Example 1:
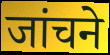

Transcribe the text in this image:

जांचने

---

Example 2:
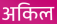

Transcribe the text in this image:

अकिल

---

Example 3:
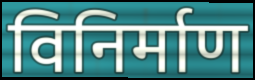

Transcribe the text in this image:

विनिर्माण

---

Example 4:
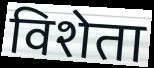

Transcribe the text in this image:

विशेता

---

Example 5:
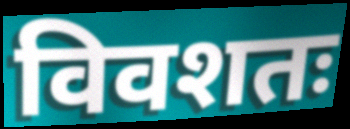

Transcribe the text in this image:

विवशतः